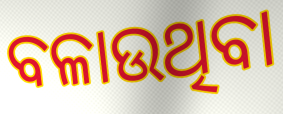
ବଳାଉଥିବା